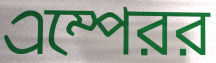
এম্পেরর